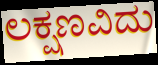
ಲಕ್ಷಣವಿದು